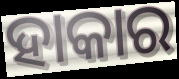
ହାକାର